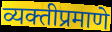
व्यक्तीप्रमाणे